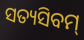
ସତ୍ୟସିବମ୍